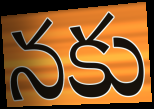
నకు